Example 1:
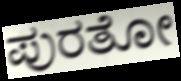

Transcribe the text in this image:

ಪುರತೋ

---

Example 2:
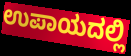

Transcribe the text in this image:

ಉಪಾಯದಲ್ಲಿ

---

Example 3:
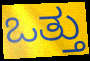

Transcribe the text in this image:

ಒತ್ತು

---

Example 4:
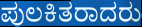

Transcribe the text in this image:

ಪುಲಕಿತರಾದರು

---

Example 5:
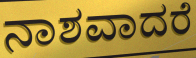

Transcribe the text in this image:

ನಾಶವಾದರೆ